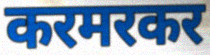
करमरकर